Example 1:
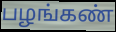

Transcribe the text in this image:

பழங்கண்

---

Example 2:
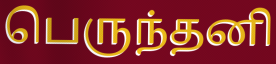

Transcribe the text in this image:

பெருந்தனி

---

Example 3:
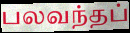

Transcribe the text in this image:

பலவந்தப்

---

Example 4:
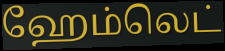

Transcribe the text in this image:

ஹேம்லெட்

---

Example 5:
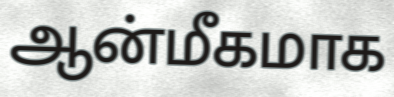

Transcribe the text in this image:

ஆன்மீகமாக